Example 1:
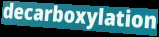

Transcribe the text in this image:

decarboxylation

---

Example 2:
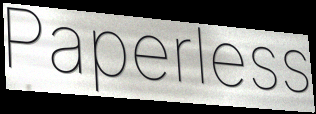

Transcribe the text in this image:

Paperless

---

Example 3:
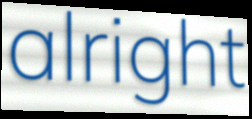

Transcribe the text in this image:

alright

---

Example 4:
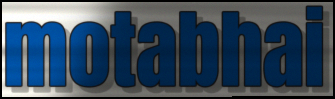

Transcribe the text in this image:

motabhai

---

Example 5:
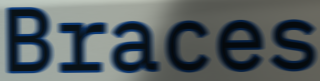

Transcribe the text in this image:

Braces